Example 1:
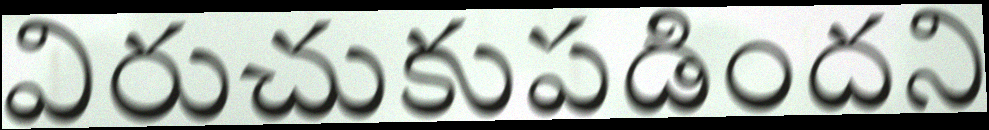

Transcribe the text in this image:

విరుచుకుపడిందని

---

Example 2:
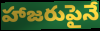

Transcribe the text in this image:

హాజరుపైనే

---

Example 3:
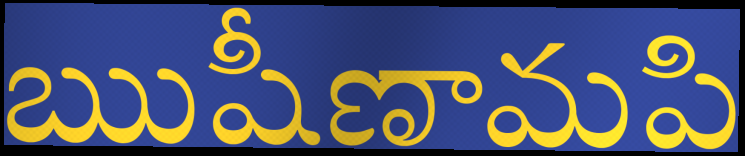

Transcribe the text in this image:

ఋషీణామపి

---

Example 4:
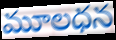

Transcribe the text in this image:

మూలధన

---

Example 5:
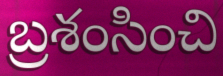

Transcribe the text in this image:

బ్రశంసించి